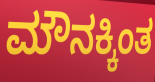
ಮೌನಕ್ಕಿಂತ